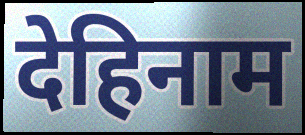
देहिनाम